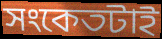
সংকেতটাই